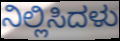
ನಿಲ್ಲಿಸಿದಳು